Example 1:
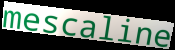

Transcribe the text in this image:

mescaline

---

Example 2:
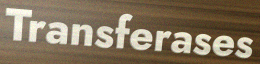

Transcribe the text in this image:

Transferases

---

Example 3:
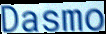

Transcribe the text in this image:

Dasmo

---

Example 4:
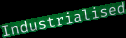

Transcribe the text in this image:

Industrialised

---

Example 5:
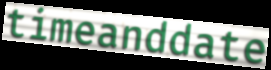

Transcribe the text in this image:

timeanddate